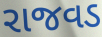
રાજવડ